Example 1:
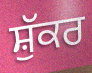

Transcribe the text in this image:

ਸ਼ੁੱਕਰ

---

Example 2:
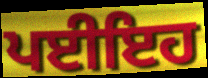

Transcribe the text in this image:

ਪਈਇਹ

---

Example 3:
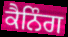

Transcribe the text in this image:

ਕੈਨਿੰਗ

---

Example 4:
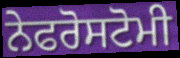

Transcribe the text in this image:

ਨੇਫਰੋਸਟੋਮੀ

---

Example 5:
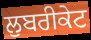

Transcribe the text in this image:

ਲੁਬਰੀਕੇਟ